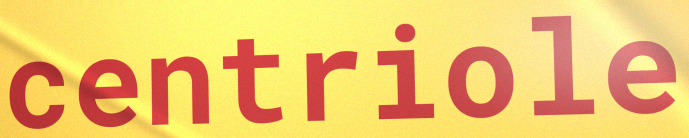
centriole